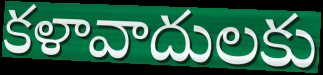
కళావాదులకు